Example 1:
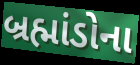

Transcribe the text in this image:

બ્રહ્માંડોના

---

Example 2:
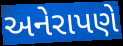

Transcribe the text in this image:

અનેરાપણે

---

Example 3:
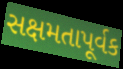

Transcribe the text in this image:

સક્ષમતાપૂર્વક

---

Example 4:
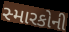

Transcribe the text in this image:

સ્મારકોની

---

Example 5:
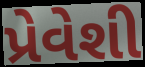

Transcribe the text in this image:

પ્રેવેશી